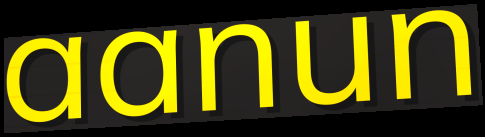
aanun